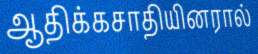
ஆதிக்கசாதியினரால்